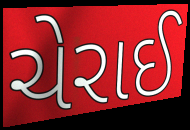
ચેરાઈ